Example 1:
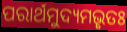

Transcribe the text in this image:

ପରାର୍ଥମୁଦ୍ୟମଭୃତଃ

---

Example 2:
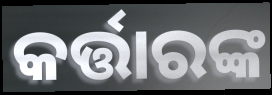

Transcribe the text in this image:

କର୍ତ୍ତାରଙ୍କ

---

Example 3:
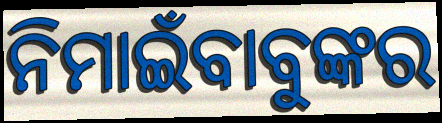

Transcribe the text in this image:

ନିମାଇଁବାବୁଙ୍କର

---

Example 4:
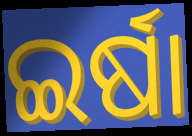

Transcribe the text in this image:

ଇର୍ଷା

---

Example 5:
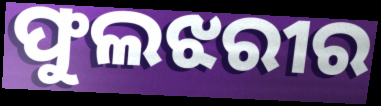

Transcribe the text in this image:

ଫୁଲଝରୀର